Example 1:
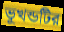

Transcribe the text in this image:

ভূখন্ডটির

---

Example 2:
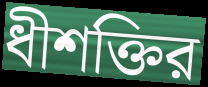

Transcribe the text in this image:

ধীশক্তির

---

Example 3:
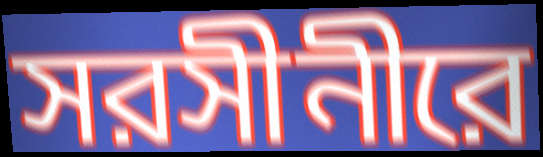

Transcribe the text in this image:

সরসীনীরে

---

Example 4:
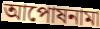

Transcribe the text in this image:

আপোষনামা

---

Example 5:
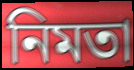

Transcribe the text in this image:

নিমতা